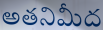
అతనిమీద